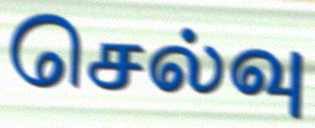
செல்வு